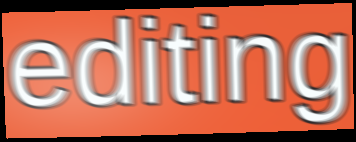
editing